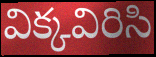
విక్కవిరిసి